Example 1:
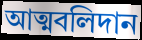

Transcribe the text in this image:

আত্মবলিদান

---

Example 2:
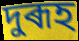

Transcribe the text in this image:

দুৰূহ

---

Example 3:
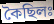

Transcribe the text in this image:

কৈছিলঃ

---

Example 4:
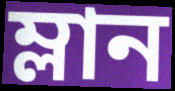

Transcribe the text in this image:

ম্লান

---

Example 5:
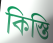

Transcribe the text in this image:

কিস্তি